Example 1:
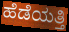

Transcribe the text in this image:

ಹೆಡೆಯತ್ತಿ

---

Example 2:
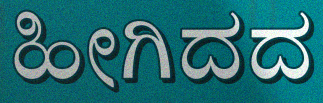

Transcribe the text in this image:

ಹೀಗಿದದ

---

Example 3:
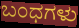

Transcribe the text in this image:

ಬಂಧಗಳು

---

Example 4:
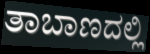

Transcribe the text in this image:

ತಾಬಾಣದಲ್ಲಿ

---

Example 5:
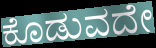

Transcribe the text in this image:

ಕೊಡುವದೇ